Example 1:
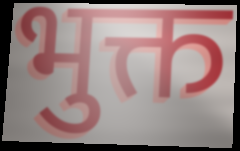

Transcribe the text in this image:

भुक्त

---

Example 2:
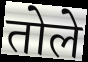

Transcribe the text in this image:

तोले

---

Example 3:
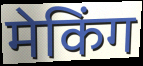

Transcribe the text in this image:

मेकिंग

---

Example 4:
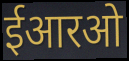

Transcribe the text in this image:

ईआरओ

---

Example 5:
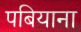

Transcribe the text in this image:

पबियाना